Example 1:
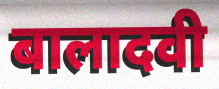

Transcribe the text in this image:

बालादवी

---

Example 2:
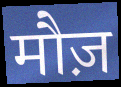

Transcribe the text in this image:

मौज़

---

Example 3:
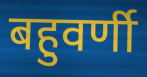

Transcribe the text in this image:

बहुवर्णी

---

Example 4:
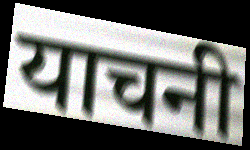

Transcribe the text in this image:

याचनी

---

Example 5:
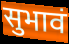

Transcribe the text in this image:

सुभावं